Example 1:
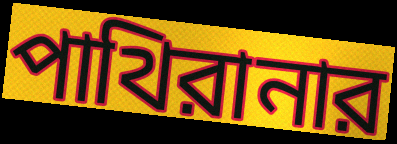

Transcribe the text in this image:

পাথিরানার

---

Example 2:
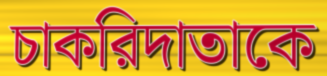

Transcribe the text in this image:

চাকরিদাতাকে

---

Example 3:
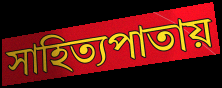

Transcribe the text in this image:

সাহিত্যপাতায়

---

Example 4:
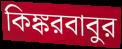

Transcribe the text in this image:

কিঙ্করবাবুর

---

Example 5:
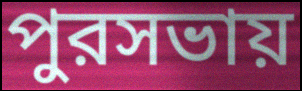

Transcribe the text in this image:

পুরসভায়